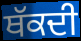
ਥੱਕਦੀ